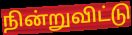
நின்றுவிட்டு